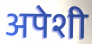
अपेशी